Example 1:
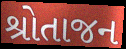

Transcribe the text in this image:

શ્રોતાજન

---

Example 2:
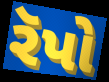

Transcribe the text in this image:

રૅપો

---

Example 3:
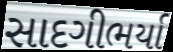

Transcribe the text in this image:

સાદગીભર્યા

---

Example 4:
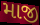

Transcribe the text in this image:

માજી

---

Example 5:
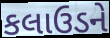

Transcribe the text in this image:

કલાઉડને